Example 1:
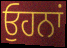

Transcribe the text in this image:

ਓੁਹਨਾਂ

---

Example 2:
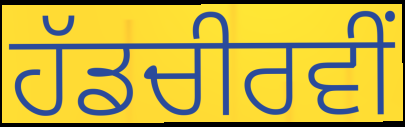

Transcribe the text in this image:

ਹੱਡਚੀਰਵੀਂ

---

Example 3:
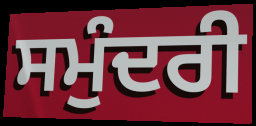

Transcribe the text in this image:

ਸਮੁੰਦਰੀ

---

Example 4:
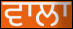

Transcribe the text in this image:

ਵਾਲਾ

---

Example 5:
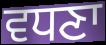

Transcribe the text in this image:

ਵਧਣਾ